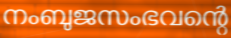
നംബുജസംഭവന്റെ